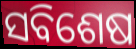
ସବିଶେଷ